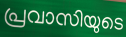
പ്രവാസിയുടെ